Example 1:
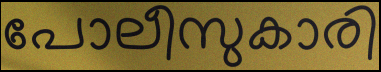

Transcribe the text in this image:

പോലീസുകാരി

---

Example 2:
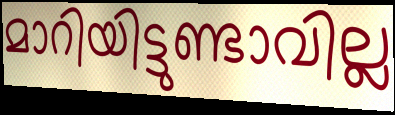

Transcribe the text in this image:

മാറിയിട്ടുണ്ടാവില്ല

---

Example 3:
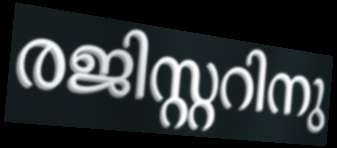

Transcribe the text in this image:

രജിസ്റ്ററിനു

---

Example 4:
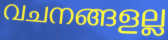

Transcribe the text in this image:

വചനങ്ങളല്ല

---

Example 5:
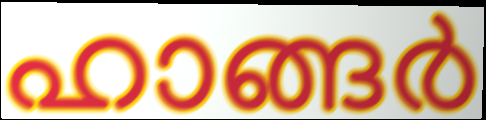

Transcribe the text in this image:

ഹാങ്ങർ